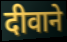
दीवाने